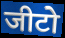
जीटो